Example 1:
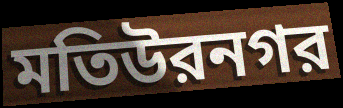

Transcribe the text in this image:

মতিউরনগর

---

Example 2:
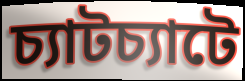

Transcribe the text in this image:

চ্যাটচ্যাটে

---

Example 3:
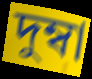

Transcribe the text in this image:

দুম্বা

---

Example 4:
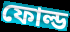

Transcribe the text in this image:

ফোল্ড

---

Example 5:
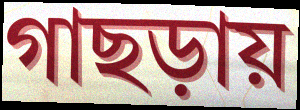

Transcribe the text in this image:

গাছড়ায়